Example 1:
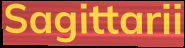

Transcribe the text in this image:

Sagittarii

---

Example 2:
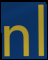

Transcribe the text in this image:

nl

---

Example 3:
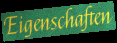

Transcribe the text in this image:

Eigenschaften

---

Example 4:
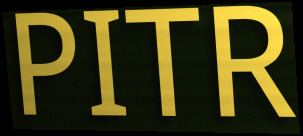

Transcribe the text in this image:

PITR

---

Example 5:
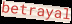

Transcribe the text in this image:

betrayal